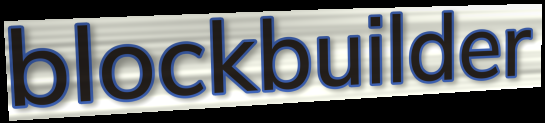
blockbuilder